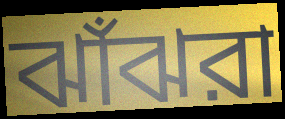
ঝাঁঝরা